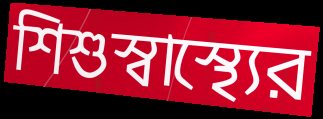
শিশুস্বাস্থ্যের